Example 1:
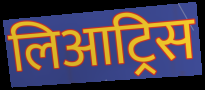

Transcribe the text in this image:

लिआट्रिस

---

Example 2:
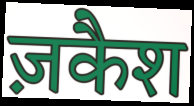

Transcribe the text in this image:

ज़कैश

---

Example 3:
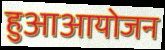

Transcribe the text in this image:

हुआआयोजन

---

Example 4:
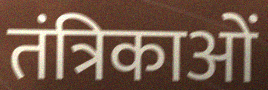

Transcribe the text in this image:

तंत्रिकाओं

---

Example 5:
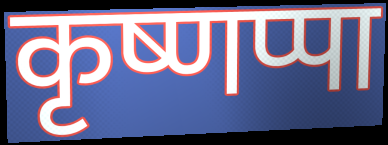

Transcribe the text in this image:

कृष्‍णप्‍पा